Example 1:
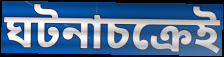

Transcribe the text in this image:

ঘটনাচক্রেই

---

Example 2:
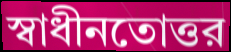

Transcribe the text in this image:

স্বাধীনতোত্তর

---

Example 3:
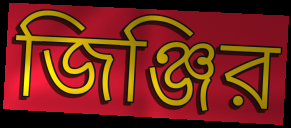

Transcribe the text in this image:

জিঞ্জির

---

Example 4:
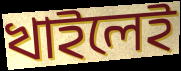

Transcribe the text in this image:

খাইলেই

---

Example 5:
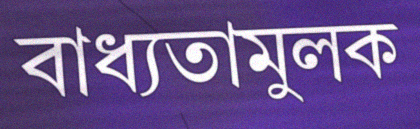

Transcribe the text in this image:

বাধ্যতামুলক